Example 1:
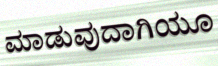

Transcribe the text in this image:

ಮಾಡುವುದಾಗಿಯೂ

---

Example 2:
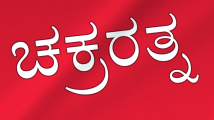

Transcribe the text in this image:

ಚಕ್ರರತ್ನ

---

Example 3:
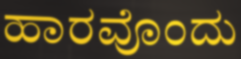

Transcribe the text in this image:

ಹಾರವೊಂದು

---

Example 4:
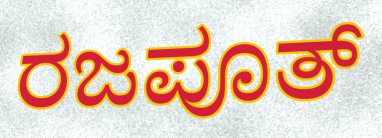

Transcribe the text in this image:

ರಜಪೂತ್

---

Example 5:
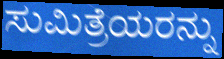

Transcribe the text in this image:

ಸುಮಿತ್ರೆಯರನ್ನು